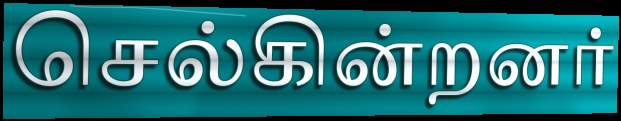
செல்கின்றனர்